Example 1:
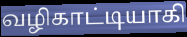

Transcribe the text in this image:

வழிகாட்டியாகி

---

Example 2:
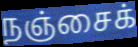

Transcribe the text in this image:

நஞ்சைக்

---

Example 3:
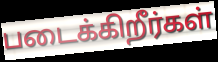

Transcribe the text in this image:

படைக்கிறீர்கள்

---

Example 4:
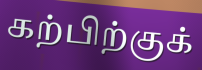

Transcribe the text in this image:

கற்பிற்குக்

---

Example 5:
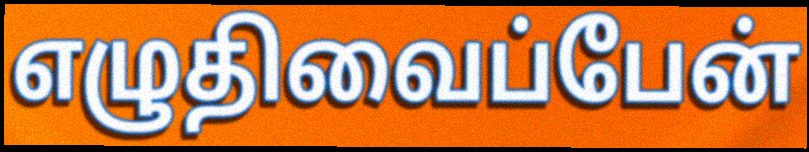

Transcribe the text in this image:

எழுதிவைப்பேன்